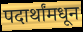
पदार्थांमधून